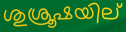
ശുശ്രൂഷയില്